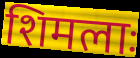
शिमलाः